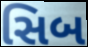
સિબ